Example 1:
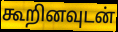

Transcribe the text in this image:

கூறினவுடன்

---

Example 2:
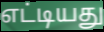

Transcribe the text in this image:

எட்டியது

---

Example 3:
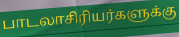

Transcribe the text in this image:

பாடலாசிரியர்களுக்கு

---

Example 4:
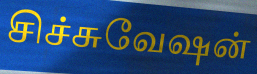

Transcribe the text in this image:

சிச்சுவேஷன்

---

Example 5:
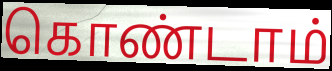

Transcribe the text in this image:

கொண்டாம்